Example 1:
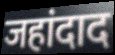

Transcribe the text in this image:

जहांदाद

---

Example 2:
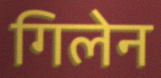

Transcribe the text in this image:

गिलेन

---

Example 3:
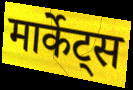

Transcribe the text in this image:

मार्केट्स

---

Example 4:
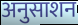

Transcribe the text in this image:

अनुसाशन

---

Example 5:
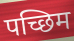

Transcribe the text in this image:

पच्छिम